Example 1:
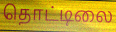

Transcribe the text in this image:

தொட்டிலை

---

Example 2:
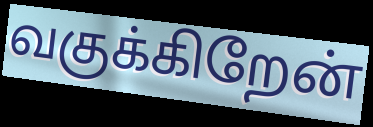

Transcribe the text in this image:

வகுக்கிறேன்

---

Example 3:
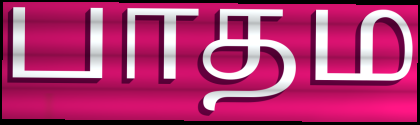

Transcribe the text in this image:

பாதம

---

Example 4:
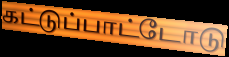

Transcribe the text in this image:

கட்டுப்பாட்டோடு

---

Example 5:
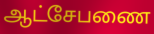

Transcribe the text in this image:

ஆட்சேபணை